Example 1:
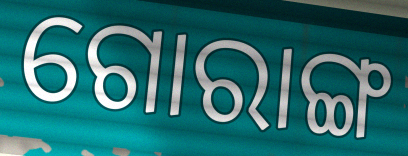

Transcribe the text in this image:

ଗୋରାଙ୍ଗ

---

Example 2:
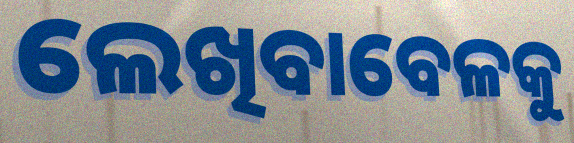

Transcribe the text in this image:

ଲେଖିବାବେଳକୁ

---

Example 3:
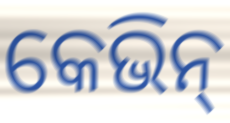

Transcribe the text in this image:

କେଭିନ୍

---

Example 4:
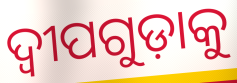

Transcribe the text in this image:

ଦ୍ୱୀପଗୁଡ଼ାକୁ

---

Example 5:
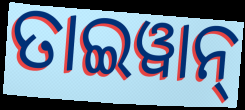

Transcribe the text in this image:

ତାଇୱାନ୍